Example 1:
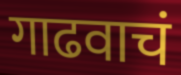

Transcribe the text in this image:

गाढवाचं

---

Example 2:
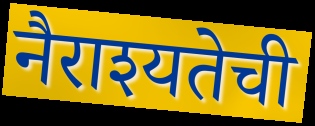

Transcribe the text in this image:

नैराश्यतेची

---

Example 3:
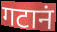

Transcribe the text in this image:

गटानं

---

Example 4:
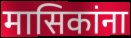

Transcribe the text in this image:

मासिकांना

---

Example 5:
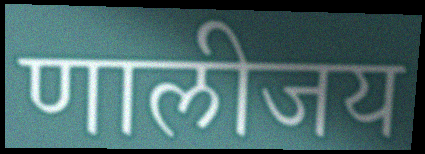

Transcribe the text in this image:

णालीजय